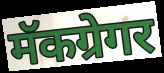
मॅकग्रेगर